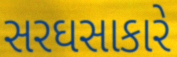
સરઘસાકારે